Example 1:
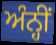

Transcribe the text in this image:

ਅੰਨ੍ਹੀਂ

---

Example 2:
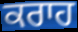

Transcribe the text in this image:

ਕਰਾਹ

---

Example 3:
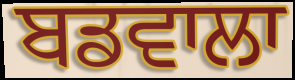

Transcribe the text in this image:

ਬਡਵਾਲਾ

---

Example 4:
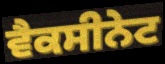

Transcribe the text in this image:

ਵੈਕਸੀਨੇਟ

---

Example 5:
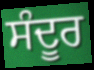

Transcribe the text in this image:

ਸੰਦੂਰ